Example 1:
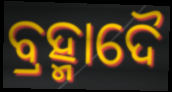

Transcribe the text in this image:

ବ୍ରହ୍ମାଦୈ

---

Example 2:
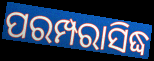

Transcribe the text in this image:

ପରମ୍ପରାସିଦ୍ଧ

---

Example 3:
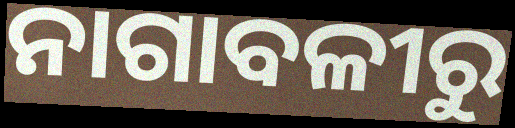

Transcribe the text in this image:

ନାଗାବଳୀରୁ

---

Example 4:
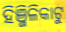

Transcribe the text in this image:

ହିଞ୍ଜିଳିକାଟୁ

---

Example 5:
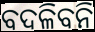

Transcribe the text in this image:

ବଦଳିବନି